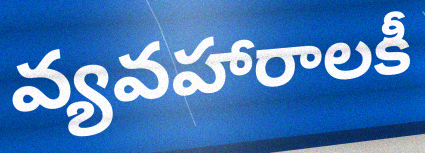
వ్యవహారాలకీ